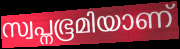
സ്വപ്നഭൂമിയാണ്